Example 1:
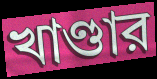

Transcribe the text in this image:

খাণ্ডার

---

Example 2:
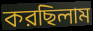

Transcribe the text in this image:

করছিলাম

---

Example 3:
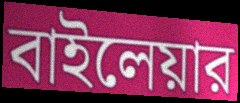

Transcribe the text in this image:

বাইলেয়ার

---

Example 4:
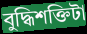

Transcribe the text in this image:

বুদ্ধিশক্তিটা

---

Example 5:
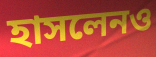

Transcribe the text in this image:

হাসলেনও